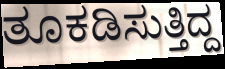
ತೂಕಡಿಸುತ್ತಿದ್ದ